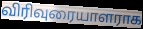
விரிவுரையாளராக